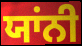
ਯਾਂਨੀ